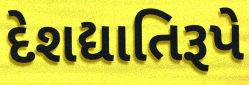
દેશદ્યાતિરૂપે